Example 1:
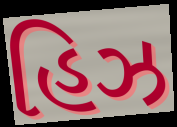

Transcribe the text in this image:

હિઝ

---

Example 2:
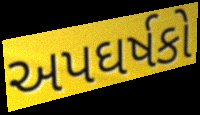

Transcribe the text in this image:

અપઘર્ષકો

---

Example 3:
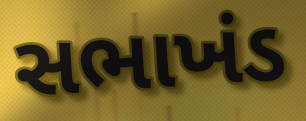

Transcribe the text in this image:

સભાખંડ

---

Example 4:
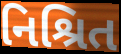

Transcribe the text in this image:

નિશ્રિત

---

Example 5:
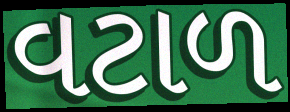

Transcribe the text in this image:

વટાળ